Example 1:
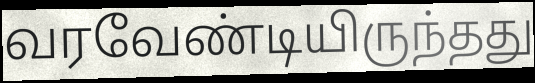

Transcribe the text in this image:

வரவேண்டியிருந்தது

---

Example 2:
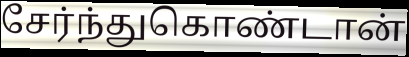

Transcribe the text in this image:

சேர்ந்துகொண்டான்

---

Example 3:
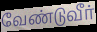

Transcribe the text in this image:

வேண்டுவீர்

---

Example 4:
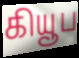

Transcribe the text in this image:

கியூப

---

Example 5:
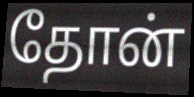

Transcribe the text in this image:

தோன்